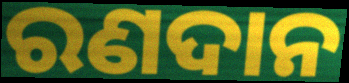
ରଣଦାନ